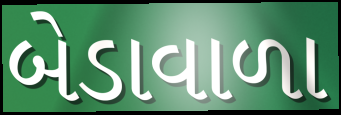
બેડાવાળા